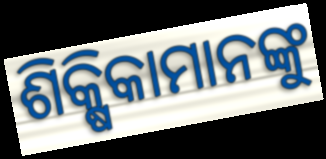
ଶିକ୍ଷିକାମାନଙ୍କୁ